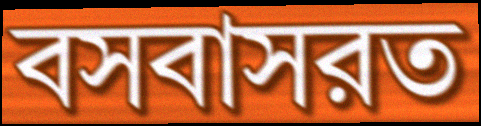
বসবাসরত